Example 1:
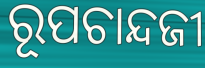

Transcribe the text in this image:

ରୂପଚାନ୍ଦଜୀ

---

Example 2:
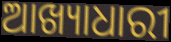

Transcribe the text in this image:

ଆଖ୍ୟାଧାରୀ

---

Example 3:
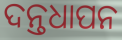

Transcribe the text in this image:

ଦନ୍ତଧାପନ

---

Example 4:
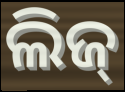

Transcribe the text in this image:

ଲିଜ୍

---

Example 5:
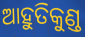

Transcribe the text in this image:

ଆହୁତିକୁଣ୍ଡ